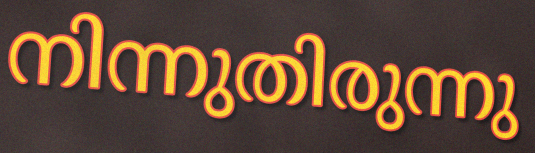
നിന്നുതിരുന്നു